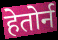
हेतोर्न